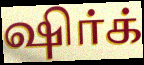
ஷிர்க்